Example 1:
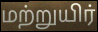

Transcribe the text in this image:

மற்றுயிர்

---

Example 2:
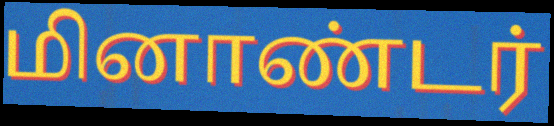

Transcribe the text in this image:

மினாண்டர்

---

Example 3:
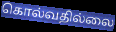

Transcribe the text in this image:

கொல்வதில்லை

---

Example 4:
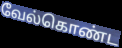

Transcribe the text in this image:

வேல்கொண்ட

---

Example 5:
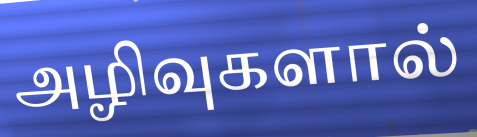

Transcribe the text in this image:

அழிவுகளால்